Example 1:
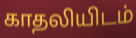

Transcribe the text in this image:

காதலியிடம்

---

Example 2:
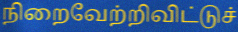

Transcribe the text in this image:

நிறைவேற்றிவிட்டுச்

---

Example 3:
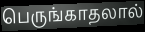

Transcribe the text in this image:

பெருங்காதலால்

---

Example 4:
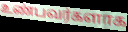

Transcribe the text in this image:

உண்பவர்களாக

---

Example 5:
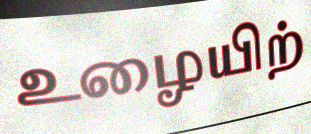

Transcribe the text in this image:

உழையிற்